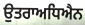
ਉਤਰਾਅਧਿਐਨ